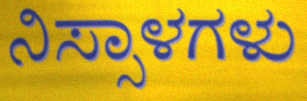
ನಿಸ್ಸಾಳಗಳು